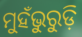
ମୁହଁଭୁରୁଡ଼ି